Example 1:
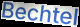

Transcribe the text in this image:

Bechtel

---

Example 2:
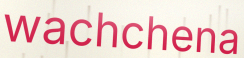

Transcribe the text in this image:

wachchena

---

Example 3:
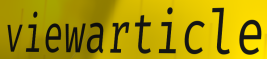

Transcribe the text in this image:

viewarticle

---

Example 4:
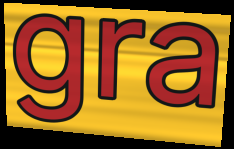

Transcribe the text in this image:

gra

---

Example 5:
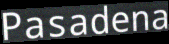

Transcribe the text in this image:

Pasadena